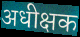
अधीक्षक